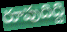
రూపుదిద్ది